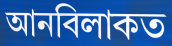
আনবিলাকত